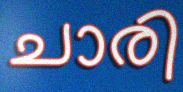
ചാരി